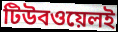
টিউবওয়েলই